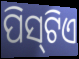
ପିସ୍‌ଟିଏ